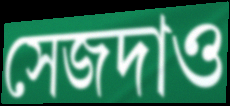
সেজদাও